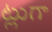
ట్లుగా